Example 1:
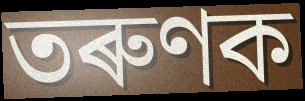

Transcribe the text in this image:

তৰুণক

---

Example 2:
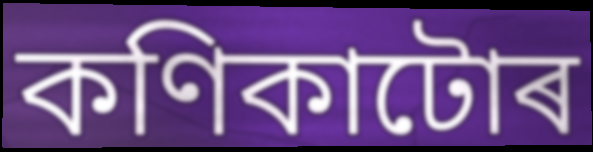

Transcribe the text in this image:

কণিকাটোৰ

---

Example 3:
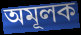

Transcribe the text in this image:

অমূলক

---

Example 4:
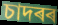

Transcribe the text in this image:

চাদৰৰ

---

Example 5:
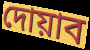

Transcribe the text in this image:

দোয়াব